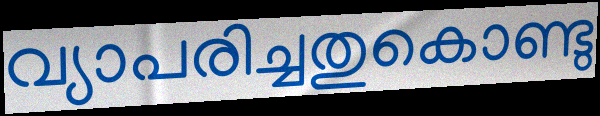
വ്യാപരിച്ചതുകൊണ്ടു